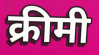
क्रीमी